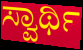
ಸ್ವಾರ್ಥಿ